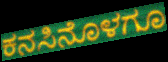
ಕನಸಿನೊಳಗೂ